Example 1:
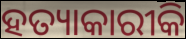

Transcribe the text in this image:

ହତ୍ୟାକାରୀକି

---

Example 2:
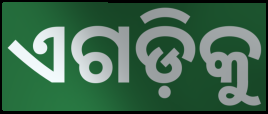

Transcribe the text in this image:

ଏଗଡ଼ିକୁ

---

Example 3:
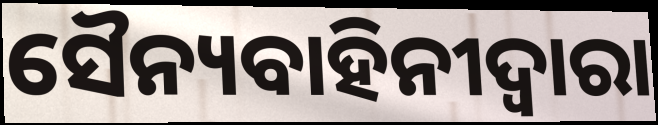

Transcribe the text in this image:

ସୈନ୍ୟବାହିନୀଦ୍ୱାରା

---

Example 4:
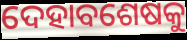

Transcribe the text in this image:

ଦେହାବଶେଷକୁ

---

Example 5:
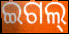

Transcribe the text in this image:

ଇଗଲ୍